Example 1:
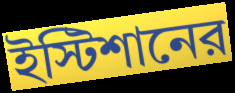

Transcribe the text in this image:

ইস্টিশানের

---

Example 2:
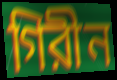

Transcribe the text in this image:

গিরীন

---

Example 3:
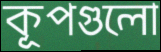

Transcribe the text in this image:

কূপগুলো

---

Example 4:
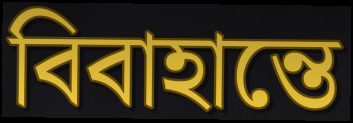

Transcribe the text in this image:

বিবাহান্তে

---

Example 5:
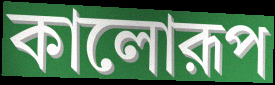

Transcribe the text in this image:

কালোরূপ